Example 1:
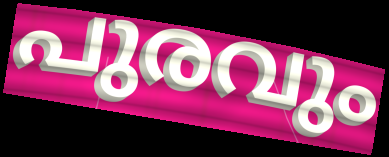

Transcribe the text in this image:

പുരവും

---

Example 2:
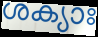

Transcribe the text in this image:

ശക്യാഃ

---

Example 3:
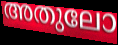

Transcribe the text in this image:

അതുലോ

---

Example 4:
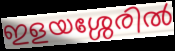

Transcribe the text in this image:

ഇളയശ്ശേരിൽ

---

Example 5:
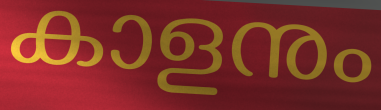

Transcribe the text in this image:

കാളനും